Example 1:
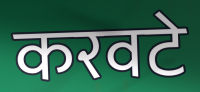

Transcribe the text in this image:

करवटे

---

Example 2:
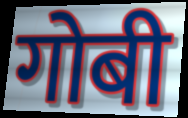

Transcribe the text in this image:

गोबी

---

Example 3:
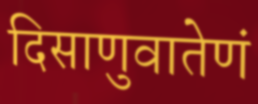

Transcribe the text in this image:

दिसाणुवातेणं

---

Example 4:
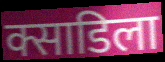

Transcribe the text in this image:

क्साडिला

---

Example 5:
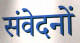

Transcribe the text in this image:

संवेदनों